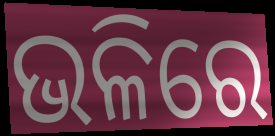
ଭଳିରେ